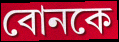
বোনকে